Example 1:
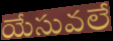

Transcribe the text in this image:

యేసువలే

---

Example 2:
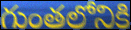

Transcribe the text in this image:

గుంతలోనికి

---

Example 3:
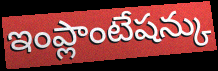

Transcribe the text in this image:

ఇంప్లాంటేషన్కు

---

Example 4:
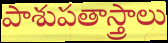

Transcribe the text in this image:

పాశుపతాస్త్రాలు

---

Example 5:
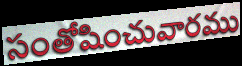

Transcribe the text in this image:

సంతోషించువారము